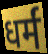
धर्म॑